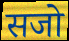
सजो